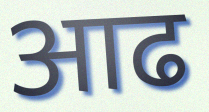
आढ